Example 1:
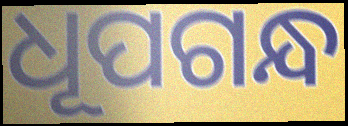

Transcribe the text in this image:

ଧୂପଗନ୍ଧ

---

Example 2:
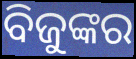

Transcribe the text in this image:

ବିଜୁଙ୍କର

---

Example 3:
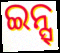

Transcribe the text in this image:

ଇନ୍ସ୍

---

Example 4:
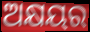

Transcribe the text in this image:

ଅକ୍ଷୟର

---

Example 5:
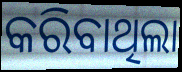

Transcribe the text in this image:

କରିବାଥିଲା